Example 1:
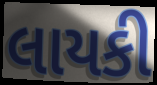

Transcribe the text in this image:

લાયકી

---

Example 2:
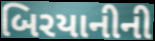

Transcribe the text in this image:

બિરયાનીની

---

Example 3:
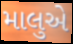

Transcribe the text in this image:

માલુએ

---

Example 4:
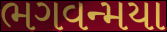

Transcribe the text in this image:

ભગવન્મયા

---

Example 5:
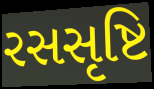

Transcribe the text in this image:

રસસૃષ્ટિ